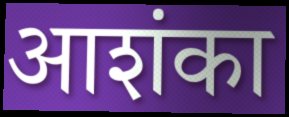
आशंका